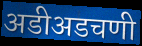
अडीअडचणी